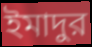
ইমাদুর